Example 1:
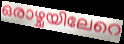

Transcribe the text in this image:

ഒരാഴ്ചയിലേറെ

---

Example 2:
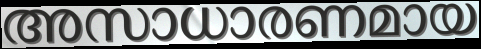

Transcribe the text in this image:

അസാധാരണമായ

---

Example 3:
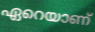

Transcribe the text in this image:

ഏറെയാണ്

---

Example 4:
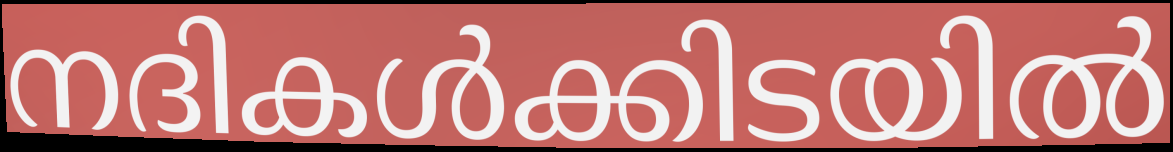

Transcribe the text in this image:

നദികൾക്കിടയിൽ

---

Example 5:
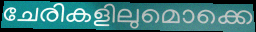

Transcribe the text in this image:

ചേരികളിലുമൊക്കെ